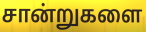
சான்றுகளை